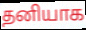
தனியாக